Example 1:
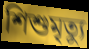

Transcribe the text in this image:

শিশুমৃত্যু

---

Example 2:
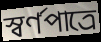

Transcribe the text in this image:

স্বর্ণপাত্রে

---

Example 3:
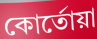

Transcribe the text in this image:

কোর্তোয়া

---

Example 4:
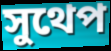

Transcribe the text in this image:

সুথেপ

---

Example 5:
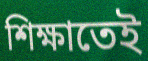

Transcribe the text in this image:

শিক্ষাতেই